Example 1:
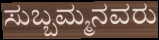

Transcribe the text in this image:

ಸುಬ್ಬಮ್ಮನವರು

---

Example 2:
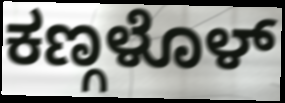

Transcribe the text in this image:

ಕಣ್ಗಳೊಳ್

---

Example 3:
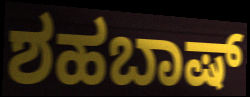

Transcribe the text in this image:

ಶಹಬಾಷ್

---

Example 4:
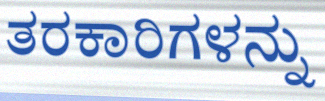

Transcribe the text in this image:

ತರಕಾರಿಗಳನ್ನು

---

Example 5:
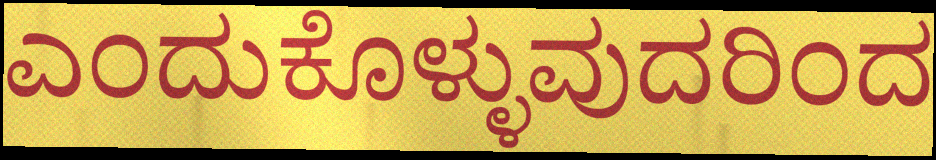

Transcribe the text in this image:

ಎಂದುಕೊಳ್ಳುವುದರಿಂದ